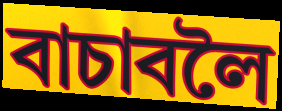
বাচাবলৈ